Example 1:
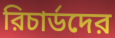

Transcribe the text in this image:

রিচার্ডদের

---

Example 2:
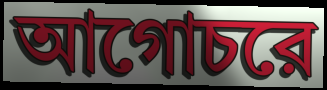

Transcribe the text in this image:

আগোচরে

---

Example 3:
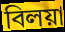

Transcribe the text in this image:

বিলয়া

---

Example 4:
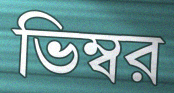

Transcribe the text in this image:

ভিম্বর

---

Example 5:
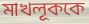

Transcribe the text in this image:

মাখলূককে